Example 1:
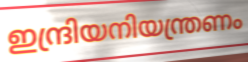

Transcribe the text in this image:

ഇന്ദ്രിയനിയന്ത്രണം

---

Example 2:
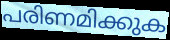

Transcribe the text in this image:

പരിണമിക്കുക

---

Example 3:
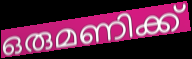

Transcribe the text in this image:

ഒരുമണിക്ക്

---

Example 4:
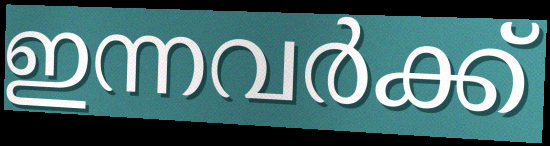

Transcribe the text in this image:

ഇന്നവർക്ക്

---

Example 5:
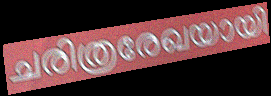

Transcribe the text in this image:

ചരിത്രരേഖയായി